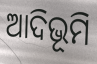
ଆଦିଭୂମି